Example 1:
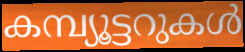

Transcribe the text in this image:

കമ്പ്യൂട്ടറുകൾ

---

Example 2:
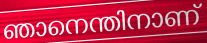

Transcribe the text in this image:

ഞാനെന്തിനാണ്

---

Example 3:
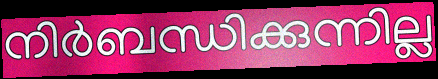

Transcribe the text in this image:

നിർബന്ധിക്കുന്നില്ല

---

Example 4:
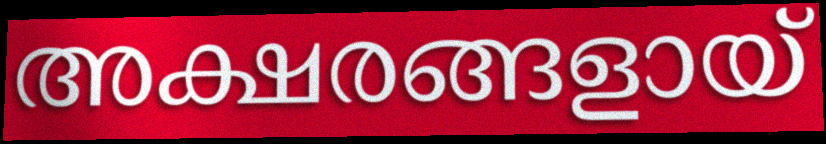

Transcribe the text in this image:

അക്ഷരങ്ങളായ്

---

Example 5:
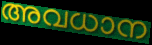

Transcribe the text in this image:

അവധാന